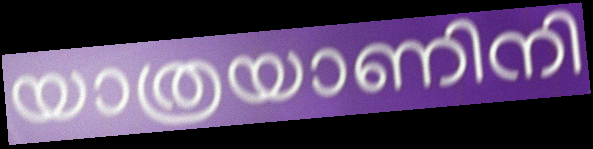
യാത്രയാണിനി